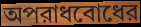
অপরাধবোধের